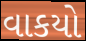
વાકયો